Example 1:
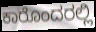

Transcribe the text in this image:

ಕಾರೊಂದರಲ್ಲಿ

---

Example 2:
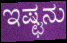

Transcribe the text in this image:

ಇಷ್ಟನು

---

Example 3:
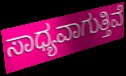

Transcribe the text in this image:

ಸಾಧ್ಯವಾಗುತ್ತಿವೆ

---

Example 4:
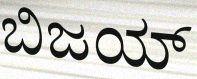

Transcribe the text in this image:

ಬಿಜಯ್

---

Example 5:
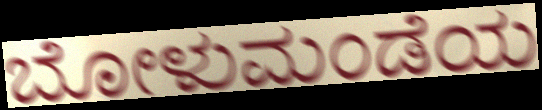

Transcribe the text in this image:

ಬೋಳುಮಂಡೆಯ